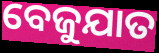
ବେଜୁଯାତ